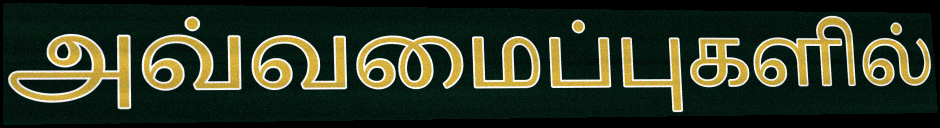
அவ்வமைப்புகளில்